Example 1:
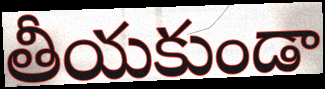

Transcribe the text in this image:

తీయకుండా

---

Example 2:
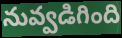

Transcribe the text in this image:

నువ్వడిగింది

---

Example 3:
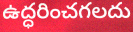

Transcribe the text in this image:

ఉద్ధరించగలదు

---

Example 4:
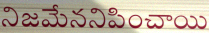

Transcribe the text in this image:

నిజమేననిపించాయి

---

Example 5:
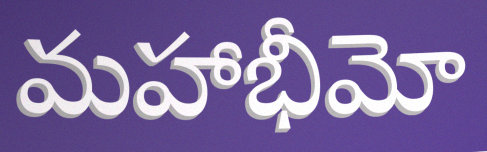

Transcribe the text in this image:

మహాభీమో